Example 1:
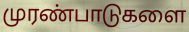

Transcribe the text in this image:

முரண்பாடுகளை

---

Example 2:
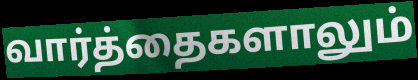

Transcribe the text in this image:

வார்த்தைகளாலும்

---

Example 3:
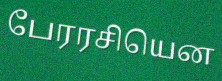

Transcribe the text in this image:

பேரரசியென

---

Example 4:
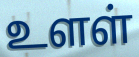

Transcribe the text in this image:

உளள்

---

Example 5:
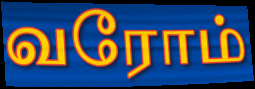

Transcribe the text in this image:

வரோம்